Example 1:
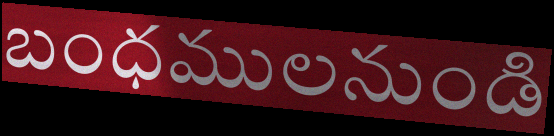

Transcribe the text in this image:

బంధములనుండి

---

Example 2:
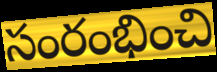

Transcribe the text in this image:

సంరంభించి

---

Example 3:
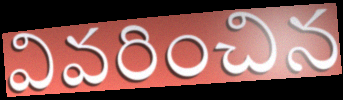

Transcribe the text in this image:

వివరించిన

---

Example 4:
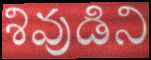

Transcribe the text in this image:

శివుడిని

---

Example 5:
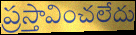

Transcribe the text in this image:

ప్రస్తావించలేదు